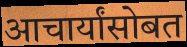
आचार्यांसोबत